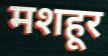
मशहूर